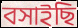
বসাইছি